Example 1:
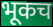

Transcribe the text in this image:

भूकच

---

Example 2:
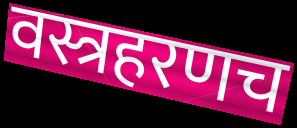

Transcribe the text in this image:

वस्त्रहरणच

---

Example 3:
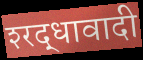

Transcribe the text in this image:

श्रद्धावादी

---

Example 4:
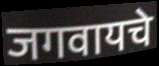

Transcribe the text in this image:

जगवायचे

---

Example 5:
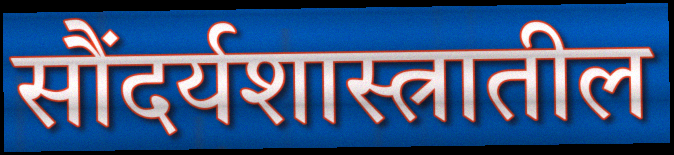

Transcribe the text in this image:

सौंदर्यशास्त्रातील